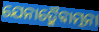
ଯେନାତ୍ମୈବାତ୍ମନା